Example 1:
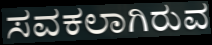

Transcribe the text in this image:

ಸವಕಲಾಗಿರುವ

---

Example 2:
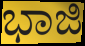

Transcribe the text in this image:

ಭಾಜಿ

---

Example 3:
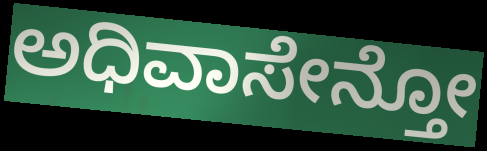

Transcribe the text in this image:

ಅಧಿವಾಸೇನ್ತೋ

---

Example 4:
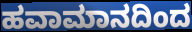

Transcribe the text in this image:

ಹವಾಮಾನದಿಂದ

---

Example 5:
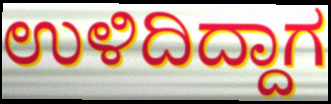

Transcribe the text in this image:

ಉಳಿದಿದ್ದಾಗ